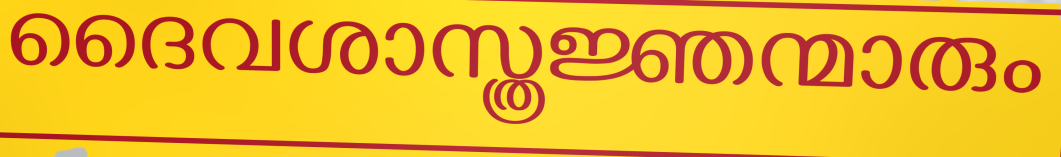
ദൈവശാസ്ത്രജ്ഞന്മാരും